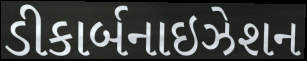
ડીકાર્બનાઇઝેશન